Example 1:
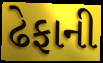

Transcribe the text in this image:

ઢેફાની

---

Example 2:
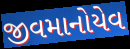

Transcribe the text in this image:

જીવમાનોયેવ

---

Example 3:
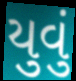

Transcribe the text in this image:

યુવું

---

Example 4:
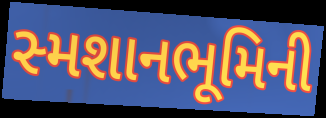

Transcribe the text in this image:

સ્મશાનભૂમિની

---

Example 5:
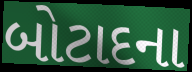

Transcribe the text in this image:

બોટાદના